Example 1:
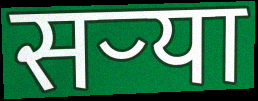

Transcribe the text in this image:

सऱ्या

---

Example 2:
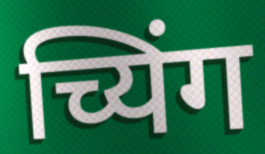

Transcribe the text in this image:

च्यिंग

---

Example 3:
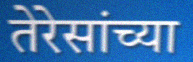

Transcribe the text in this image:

तेरेसांच्या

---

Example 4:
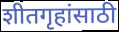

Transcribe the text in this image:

शीतगृहांसाठी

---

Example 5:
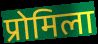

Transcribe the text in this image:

प्रोमिला